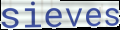
sieves